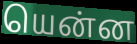
யென்ன